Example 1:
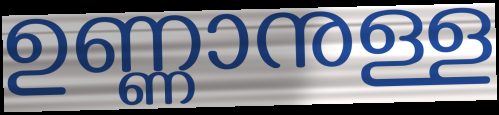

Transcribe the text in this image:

ഉണ്ണാനുള്ള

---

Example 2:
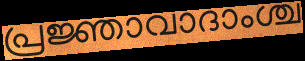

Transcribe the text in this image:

പ്രജ്ഞാവാദാംശ്ച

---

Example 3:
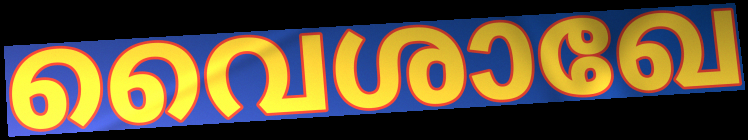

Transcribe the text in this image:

വൈശാഖേ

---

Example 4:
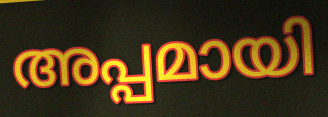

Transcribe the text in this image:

അപ്പമായി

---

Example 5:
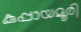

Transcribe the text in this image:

കുപ്പായമൂരി